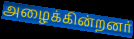
அழைக்கின்றனர்